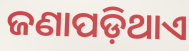
ଜଣାପଡ଼ିଥାଏ